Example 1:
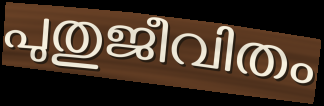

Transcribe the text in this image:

പുതുജീവിതം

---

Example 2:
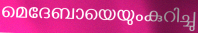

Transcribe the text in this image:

മെദേബായെയുംകുറിച്ചു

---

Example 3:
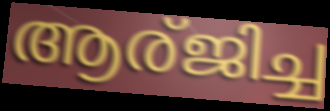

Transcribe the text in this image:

ആര്ജിച്ച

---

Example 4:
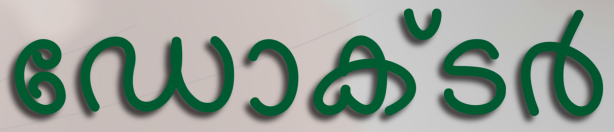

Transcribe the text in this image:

ഡോക്ടർ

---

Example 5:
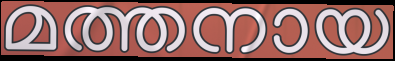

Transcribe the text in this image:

മത്തനായ